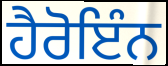
ਹੈਰੋਇੰਨ